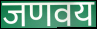
जणवय